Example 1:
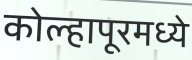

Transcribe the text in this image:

कोल्हापूरमध्ये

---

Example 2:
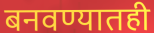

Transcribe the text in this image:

बनवण्यातही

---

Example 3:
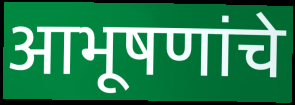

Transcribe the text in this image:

आभूषणांचे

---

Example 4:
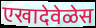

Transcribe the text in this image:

एखादेवेळेस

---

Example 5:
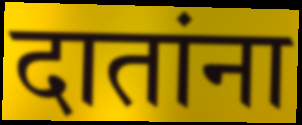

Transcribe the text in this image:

दातांना